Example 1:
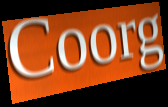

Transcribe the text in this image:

Coorg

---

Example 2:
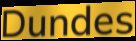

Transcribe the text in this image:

Dundes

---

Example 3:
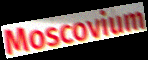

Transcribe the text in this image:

Moscovium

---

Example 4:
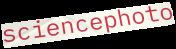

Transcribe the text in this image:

sciencephoto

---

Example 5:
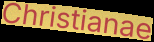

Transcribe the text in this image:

Christianae